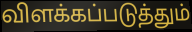
விளக்கப்படுத்தும்